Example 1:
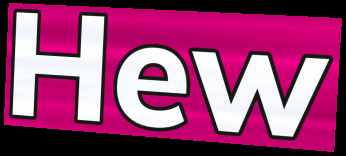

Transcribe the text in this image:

Hew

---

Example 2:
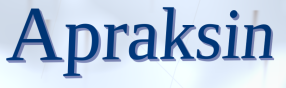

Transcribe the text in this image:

Apraksin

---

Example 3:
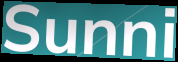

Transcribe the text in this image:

Sunni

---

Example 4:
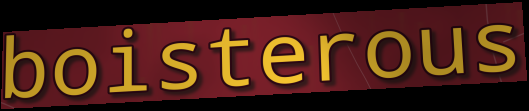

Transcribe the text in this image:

boisterous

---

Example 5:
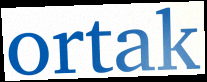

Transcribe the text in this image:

ortak